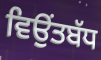
ਵਿਉਂਤਬੱਧ